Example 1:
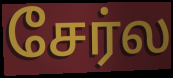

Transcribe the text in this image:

சேர்ல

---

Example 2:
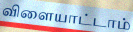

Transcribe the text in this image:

விளையாட்டாம்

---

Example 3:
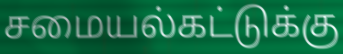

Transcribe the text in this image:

சமையல்கட்டுக்கு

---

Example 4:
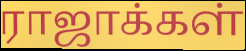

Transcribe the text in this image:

ராஜாக்கள்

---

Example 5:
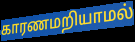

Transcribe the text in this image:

காரணமறியாமல்